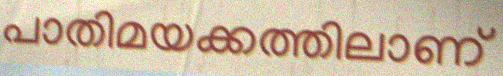
പാതിമയക്കത്തിലാണ്